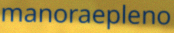
manoraepleno